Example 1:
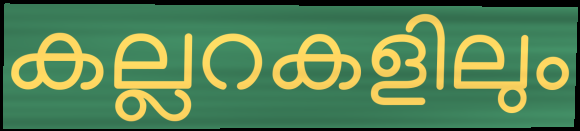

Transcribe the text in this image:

കല്ലറകളിലും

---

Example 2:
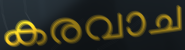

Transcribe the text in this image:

കരവാച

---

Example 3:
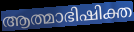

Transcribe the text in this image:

ആത്മാഭിഷിക്ത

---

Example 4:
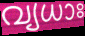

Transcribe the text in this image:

വ്യധാഃ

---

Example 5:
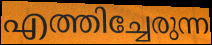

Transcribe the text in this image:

എത്തിച്ചേരുന്ന